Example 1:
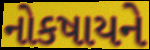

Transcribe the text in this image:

નોકષાયને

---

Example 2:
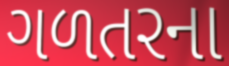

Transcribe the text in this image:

ગળતરના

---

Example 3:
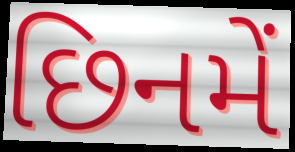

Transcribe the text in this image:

છિનમેં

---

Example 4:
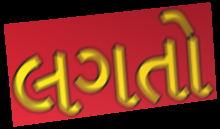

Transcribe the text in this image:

લગતો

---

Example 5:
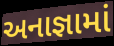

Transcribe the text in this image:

અનાજ્ઞામાં